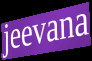
jeevana